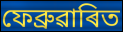
ফেব্ৰুৱাৰিত